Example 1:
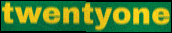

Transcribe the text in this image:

twentyone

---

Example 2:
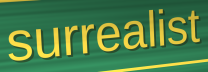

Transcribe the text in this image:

surrealist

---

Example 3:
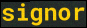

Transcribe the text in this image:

signor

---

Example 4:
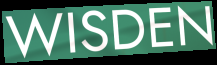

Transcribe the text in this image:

WISDEN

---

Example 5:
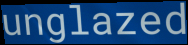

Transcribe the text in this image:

unglazed